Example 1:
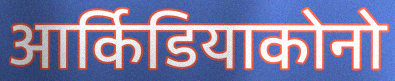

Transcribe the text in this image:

आर्किडियाकोनो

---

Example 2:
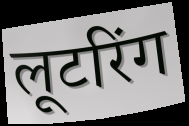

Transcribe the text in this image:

लूटरिंग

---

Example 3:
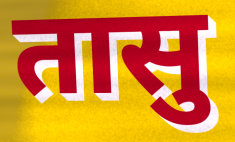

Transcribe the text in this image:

तासु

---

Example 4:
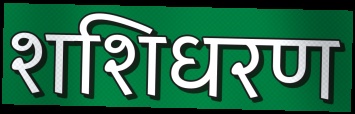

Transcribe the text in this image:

शशिधरण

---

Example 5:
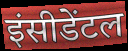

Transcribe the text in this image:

इंसीडेंटल